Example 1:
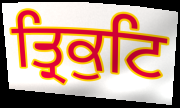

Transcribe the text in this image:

ਤ੍ਰਿਕੁਟਿ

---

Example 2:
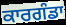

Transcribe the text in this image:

ਕਾਰਗੰਡਾ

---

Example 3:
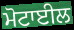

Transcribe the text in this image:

ਮੋਟਾਈਲ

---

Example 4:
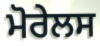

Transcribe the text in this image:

ਮੋਰੇਲਸ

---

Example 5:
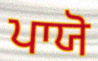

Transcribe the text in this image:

ਪਾਯੋ